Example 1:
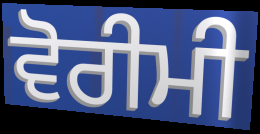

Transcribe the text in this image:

ਵੋਰੀਮੀ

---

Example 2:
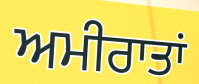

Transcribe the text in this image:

ਅਮੀਰਾਤਾਂ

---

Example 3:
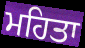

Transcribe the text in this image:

ਮਹਿਤਾ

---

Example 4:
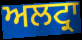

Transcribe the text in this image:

ਅਲਟ੍ਰਾ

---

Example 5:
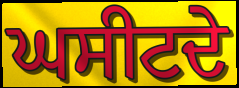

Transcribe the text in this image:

ਘਸੀਟਦੇ